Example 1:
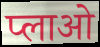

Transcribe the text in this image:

प्लाओ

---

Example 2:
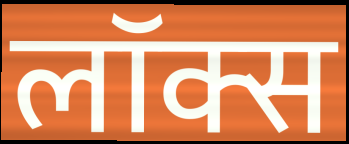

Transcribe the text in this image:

लॉक्स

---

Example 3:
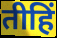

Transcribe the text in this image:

तीहिं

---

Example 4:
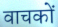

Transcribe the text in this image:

वाचकों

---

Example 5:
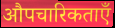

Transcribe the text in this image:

औपचारिकताएँ